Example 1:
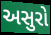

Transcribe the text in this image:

અસુરો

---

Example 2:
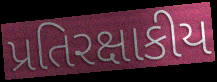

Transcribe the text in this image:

પ્રતિરક્ષાકીય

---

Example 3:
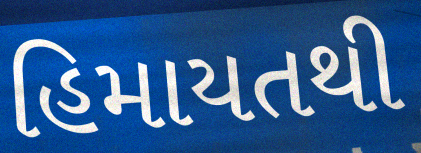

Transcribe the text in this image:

હિમાયતથી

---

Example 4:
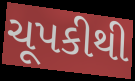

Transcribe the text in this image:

ચૂપકીથી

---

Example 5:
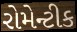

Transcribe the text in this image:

રોમેન્ટીક